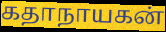
கதாநாயகன்